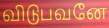
விடுபவனே